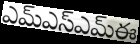
ఎమ్ఎస్ఎమ్ఈ